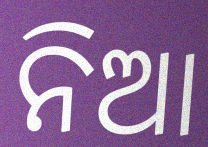
ନିଆ